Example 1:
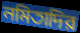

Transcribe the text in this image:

নমিতাদির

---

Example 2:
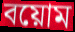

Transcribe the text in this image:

বয়োম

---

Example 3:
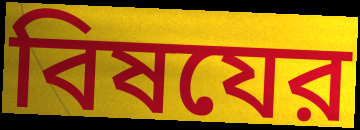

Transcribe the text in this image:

বিষযের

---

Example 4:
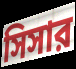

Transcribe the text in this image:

সিসার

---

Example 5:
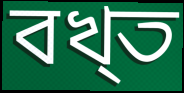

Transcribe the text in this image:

বখ্ত